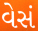
વેસં